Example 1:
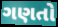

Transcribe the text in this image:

ગણતો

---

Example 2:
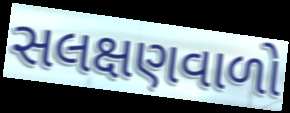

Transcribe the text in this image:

સલક્ષણવાળો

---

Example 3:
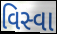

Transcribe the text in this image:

વિસ્વા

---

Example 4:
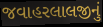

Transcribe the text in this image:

જવાહરલાલજીનું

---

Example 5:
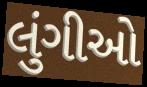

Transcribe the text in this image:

લુંગીઓ